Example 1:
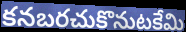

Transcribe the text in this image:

కనబరచుకొనుటకేమి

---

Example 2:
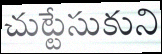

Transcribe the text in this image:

చుట్టేసుకుని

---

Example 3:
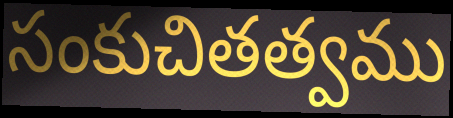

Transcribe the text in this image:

సంకుచితత్వము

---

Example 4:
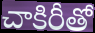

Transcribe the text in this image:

చాకిరీతో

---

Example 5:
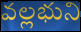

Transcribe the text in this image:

వల్లభుని